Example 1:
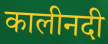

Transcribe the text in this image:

कालीनदी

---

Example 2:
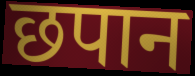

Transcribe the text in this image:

छपान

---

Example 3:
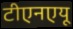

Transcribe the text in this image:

टीएनएयू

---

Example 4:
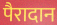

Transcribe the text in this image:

पैरादान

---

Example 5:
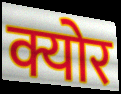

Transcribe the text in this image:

क्योर